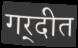
गर्दीत